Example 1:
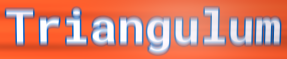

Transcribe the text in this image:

Triangulum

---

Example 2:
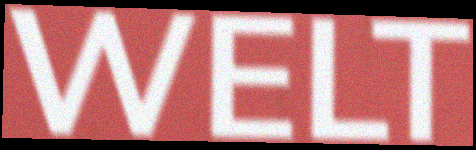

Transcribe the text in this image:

WELT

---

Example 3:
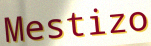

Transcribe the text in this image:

Mestizo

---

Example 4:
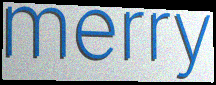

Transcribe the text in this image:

merry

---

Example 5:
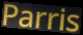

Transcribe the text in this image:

Parris